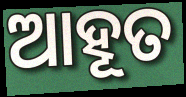
ଆହୂତ